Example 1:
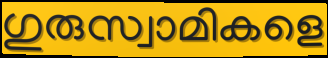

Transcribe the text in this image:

ഗുരുസ്വാമികളെ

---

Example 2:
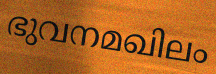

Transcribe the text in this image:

ഭുവനമഖിലം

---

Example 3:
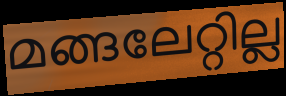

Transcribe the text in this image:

മങ്ങലേറ്റില്ല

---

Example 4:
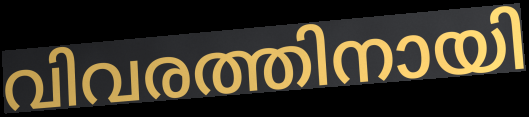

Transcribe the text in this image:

വിവരത്തിനായി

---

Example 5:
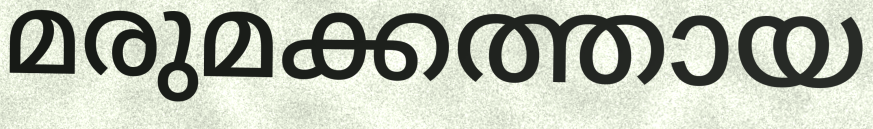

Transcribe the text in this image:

മരുമക്കത്തായ